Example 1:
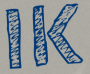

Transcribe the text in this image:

IK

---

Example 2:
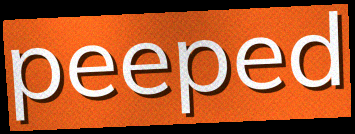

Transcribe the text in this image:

peeped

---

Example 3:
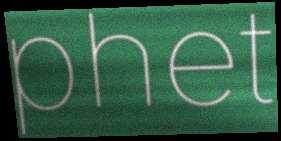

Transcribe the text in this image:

phet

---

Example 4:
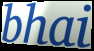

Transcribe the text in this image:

bhai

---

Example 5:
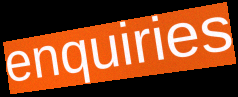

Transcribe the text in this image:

enquiries